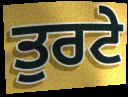
ਤੁਰਟੇ